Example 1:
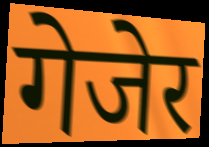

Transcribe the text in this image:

गेजेर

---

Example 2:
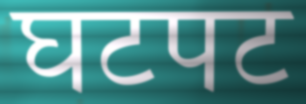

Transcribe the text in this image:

घटपट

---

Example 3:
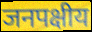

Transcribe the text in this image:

जनपक्षीय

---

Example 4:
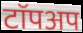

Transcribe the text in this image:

टॉपअप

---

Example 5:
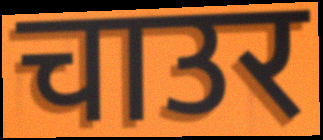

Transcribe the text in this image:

चाउर